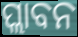
ପ୍ଲାବନ